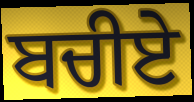
ਬਚੀਏ